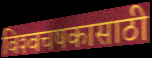
विश्वचषकासाठी